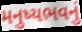
મનુષ્યભવનું